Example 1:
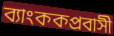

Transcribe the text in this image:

ব্যাংককপ্রবাসী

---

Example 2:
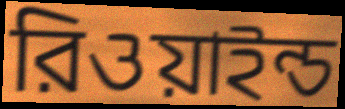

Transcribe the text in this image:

রিওয়াইন্ড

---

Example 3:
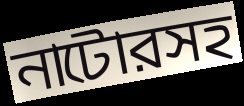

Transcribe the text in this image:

নাটোরসহ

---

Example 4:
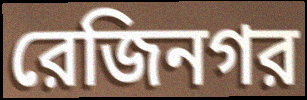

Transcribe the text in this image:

রেজিনগর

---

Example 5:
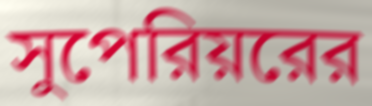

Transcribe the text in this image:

সুপেরিয়রের